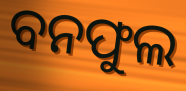
ବନଫୁଲ